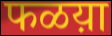
फळय़ा